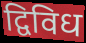
द्विविध